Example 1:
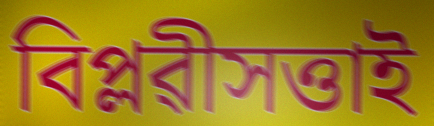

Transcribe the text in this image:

বিপ্লৱীসত্তাই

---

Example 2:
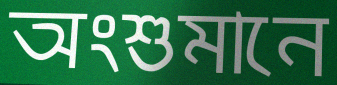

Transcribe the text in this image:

অংশুমানে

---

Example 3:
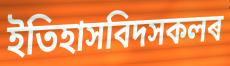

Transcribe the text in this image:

ইতিহাসবিদসকলৰ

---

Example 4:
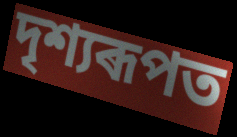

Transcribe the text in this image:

দৃশ্যৰূপত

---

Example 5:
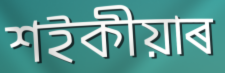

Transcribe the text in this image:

শইকীয়াৰ